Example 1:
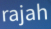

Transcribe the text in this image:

rajah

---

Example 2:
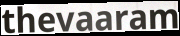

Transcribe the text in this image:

thevaaram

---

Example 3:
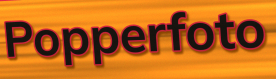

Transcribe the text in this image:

Popperfoto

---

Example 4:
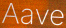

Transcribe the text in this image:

Aave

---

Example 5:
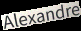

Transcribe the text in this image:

Alexandre